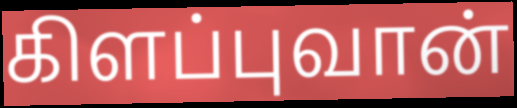
கிளப்புவான்